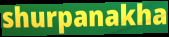
shurpanakha